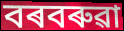
বৰবৰুৱা